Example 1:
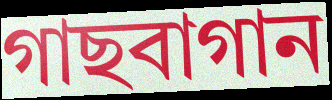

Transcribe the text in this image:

গাছবাগান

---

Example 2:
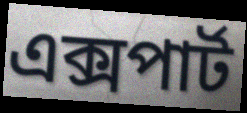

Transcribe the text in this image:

এক্সপার্ট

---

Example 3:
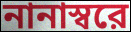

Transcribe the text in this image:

নানাস্বরে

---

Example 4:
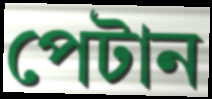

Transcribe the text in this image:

পেটান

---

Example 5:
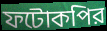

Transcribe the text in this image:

ফটোকপির